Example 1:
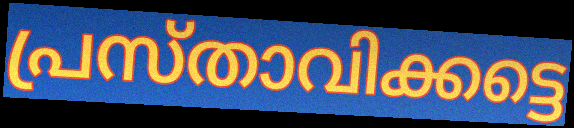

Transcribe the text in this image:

പ്രസ്താവിക്കട്ടെ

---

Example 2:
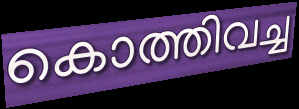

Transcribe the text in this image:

കൊത്തിവച്ച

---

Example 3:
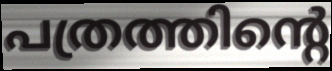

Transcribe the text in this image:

പത്രത്തിന്റെ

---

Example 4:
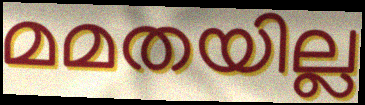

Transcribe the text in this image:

മമതയില്ല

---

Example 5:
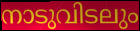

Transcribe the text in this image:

നാടുവിടലും